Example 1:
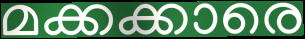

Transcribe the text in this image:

മക്കക്കാരെ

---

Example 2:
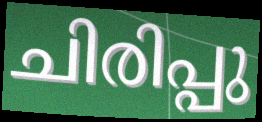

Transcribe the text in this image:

ചിരിപ്പു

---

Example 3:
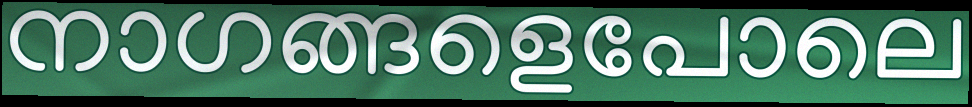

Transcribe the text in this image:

നാഗങ്ങളെപോലെ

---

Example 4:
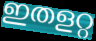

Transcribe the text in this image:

ഇതളറ്റ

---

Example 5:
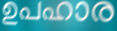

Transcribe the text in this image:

ഉപഹാര